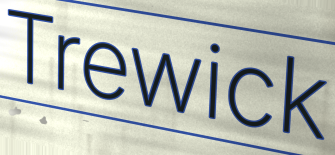
Trewick